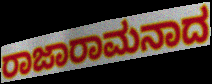
ರಾಜಾರಾಮನಾದ